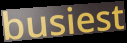
busiest